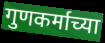
गुणकर्माच्या